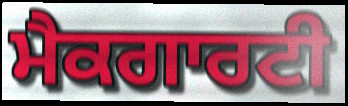
ਮੈਕਗਾਰਟੀ